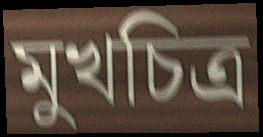
মুখচিত্র